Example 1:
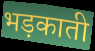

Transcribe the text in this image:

भड़काती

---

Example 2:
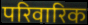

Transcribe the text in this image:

परिवारिक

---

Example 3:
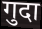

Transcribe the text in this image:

गुदा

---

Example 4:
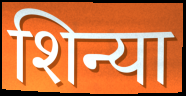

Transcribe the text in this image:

शिन्या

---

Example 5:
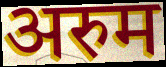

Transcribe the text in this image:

अरुम